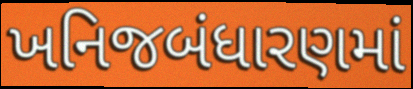
ખનિજબંધારણમાં